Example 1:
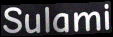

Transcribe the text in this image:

Sulami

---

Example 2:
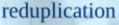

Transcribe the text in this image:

reduplication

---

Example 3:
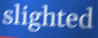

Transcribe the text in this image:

slighted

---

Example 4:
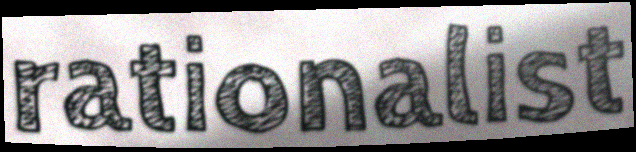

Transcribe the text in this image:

rationalist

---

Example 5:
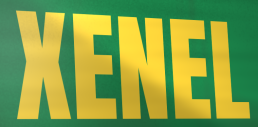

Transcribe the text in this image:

XENEL